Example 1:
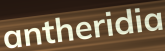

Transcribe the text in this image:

antheridia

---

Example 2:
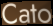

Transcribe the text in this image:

Cato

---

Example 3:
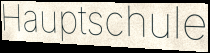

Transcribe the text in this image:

Hauptschule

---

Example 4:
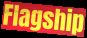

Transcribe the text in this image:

Flagship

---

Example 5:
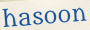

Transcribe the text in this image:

hasoon